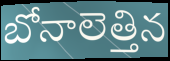
బోనాలెత్తిన